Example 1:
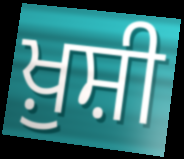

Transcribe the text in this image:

ਖ਼ੁਸ਼ੀ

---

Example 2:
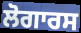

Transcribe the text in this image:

ਲੋਗਾਰਸ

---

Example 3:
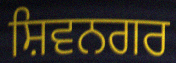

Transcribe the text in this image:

ਸ਼ਿਵਨਗਰ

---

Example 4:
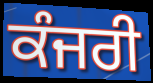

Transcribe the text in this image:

ਕੰਜਰੀ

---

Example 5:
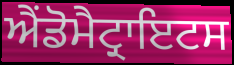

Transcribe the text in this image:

ਐਂਡੋਮੈਟ੍ਰਾਇਟਸ